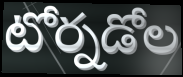
టోర్నడోల